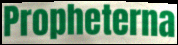
Propheterna